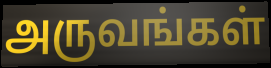
அருவங்கள்